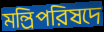
মন্ত্রিপরিষদে